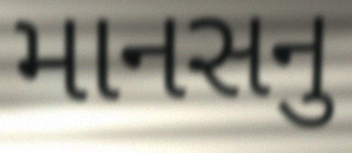
માનસનુ